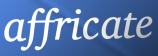
affricate